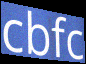
cbfc